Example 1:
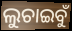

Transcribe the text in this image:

ଲୁଚାଇବୁଁ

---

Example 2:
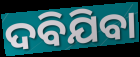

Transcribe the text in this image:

ଦବିଯିବା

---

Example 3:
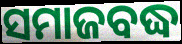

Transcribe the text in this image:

ସମାଜବଦ୍ଧ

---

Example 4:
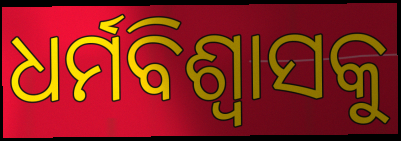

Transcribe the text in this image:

ଧର୍ମବିଶ୍ୱାସକୁ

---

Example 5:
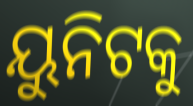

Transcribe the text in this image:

ୟୁନିଟକୁ